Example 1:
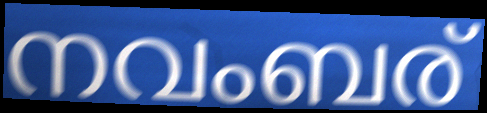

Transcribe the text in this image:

നവംബര്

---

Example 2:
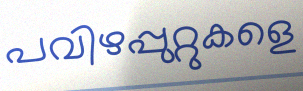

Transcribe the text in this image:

പവിഴപ്പുറ്റുകളെ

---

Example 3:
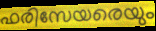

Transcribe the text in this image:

ഫരിസേയരെയും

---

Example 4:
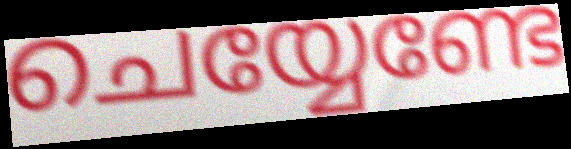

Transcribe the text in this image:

ചെയ്യേണ്ടേ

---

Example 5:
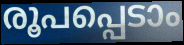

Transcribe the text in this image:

രൂപപ്പെടാം